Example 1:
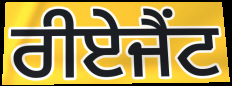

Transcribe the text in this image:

ਰੀਏਜੈਂਟ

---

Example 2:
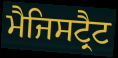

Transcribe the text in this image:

ਮੈਜਿਸਟ੍ਰੈਟ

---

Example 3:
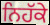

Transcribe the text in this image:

ਨਿਹੱਕੇ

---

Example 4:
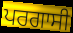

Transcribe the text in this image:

ਪਰਗਾਸੀ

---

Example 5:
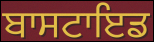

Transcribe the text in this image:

ਬਾਸਟਾਇਡ